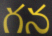
గన